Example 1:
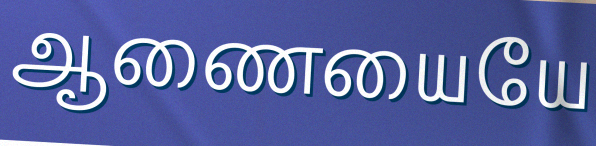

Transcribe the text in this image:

ஆணையையே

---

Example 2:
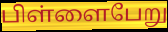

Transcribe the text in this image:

பிள்ளைபேறு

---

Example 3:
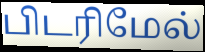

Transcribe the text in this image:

பிடரிமேல்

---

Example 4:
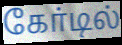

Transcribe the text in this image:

கேர்டில்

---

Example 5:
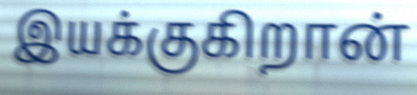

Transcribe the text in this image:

இயக்குகிறான்